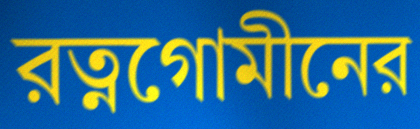
রত্নগোমীনের